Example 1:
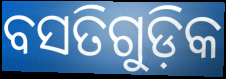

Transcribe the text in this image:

ବସତିଗୁଡ଼ିକ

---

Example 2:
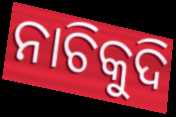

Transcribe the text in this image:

ନାଚିକୁଦି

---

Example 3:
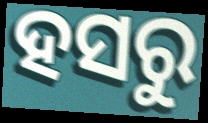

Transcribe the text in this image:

ହସରୁ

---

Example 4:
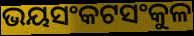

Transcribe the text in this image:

ଭୟସଂକଟସଂକୁଳ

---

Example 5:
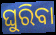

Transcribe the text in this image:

ଘୁରିବା